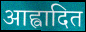
आह्वादित